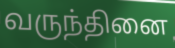
வருந்தினை